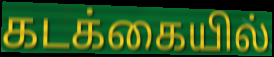
கடக்கையில்